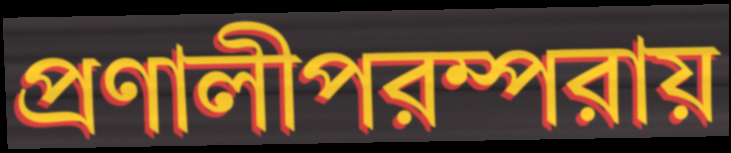
প্রণালীপরম্পরায়